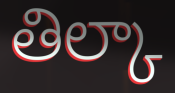
తిల్కా